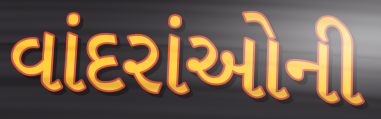
વાંદરાંઓની